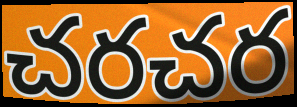
చరచర